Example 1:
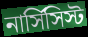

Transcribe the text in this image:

নার্সিসিস্ট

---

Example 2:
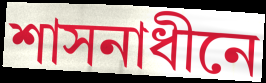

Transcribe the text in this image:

শাসনাধীনে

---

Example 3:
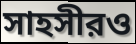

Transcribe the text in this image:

সাহসীরও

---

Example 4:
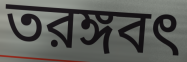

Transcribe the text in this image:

তরঙ্গবৎ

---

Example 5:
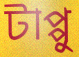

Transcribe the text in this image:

টাপ্পু